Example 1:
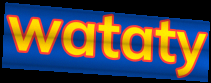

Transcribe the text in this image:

wataty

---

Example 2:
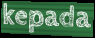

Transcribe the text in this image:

kepada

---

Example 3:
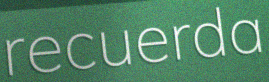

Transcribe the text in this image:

recuerda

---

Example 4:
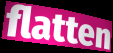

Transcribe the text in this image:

flatten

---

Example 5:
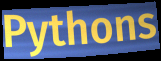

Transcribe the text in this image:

Pythons